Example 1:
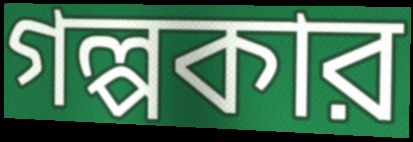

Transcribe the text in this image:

গল্পকার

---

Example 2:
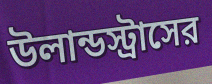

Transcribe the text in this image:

উলান্ডস্ট্রাসের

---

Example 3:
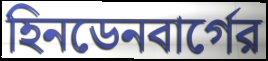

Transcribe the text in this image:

হিনডেনবার্গের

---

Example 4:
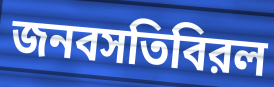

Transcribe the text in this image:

জনবসতিবিরল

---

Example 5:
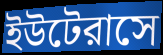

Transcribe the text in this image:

ইউটেরাসে